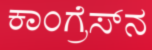
ಕಾಂಗ್ರೆಸ್‍ನ